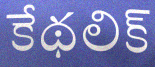
కేథలిక్